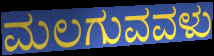
ಮಲಗುವವಳು